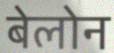
बेलोन